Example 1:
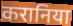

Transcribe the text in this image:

करानिया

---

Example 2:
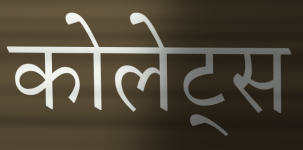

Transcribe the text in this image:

कोलेट्स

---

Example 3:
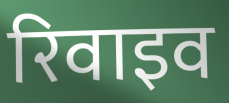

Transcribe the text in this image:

रिवाइव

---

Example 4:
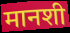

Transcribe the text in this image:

मानशी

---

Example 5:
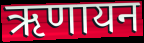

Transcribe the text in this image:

ऋणायन